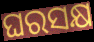
ଘରସକ୍ଷ